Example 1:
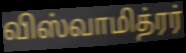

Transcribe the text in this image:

விஸ்வாமித்ரர்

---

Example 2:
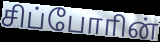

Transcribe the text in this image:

சிப்போரின்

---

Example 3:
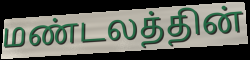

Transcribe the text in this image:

மண்டலத்தின்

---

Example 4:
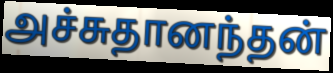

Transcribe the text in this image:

அச்சுதானந்தன்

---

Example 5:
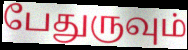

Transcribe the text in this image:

பேதுருவும்